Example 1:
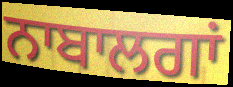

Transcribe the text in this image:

ਨਾਬਾਲਗਾਂ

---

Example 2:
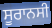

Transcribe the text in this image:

ਸੂਰਾਨਸੀ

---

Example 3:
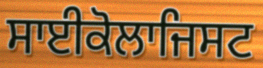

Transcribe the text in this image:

ਸਾਈਕੋਲਾਜਿਸਟ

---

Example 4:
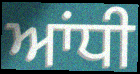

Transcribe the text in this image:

ਆਂਧੀ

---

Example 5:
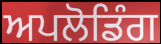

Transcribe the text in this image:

ਅਪਲੋਡਿੰਗ